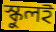
স্কুলই